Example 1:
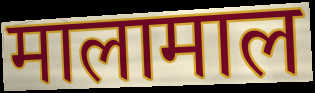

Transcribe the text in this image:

मालामाल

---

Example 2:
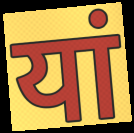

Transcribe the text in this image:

यां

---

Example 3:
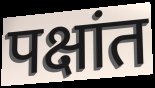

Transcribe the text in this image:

पक्षांत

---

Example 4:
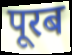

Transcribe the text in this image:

पूरब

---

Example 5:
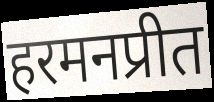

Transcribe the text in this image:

हरमनप्रीत